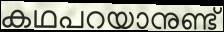
കഥപറയാനുണ്ട്